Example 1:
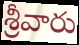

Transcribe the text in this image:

శ్రీవారు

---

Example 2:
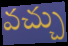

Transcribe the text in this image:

వచ్చు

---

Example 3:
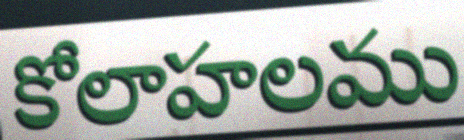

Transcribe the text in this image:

కోలాహలము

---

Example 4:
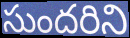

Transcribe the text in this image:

సుందరిని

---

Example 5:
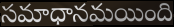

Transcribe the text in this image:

సమాధానమయింది